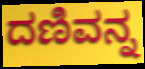
ದಣಿವನ್ನ